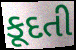
કૂદતી